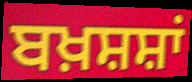
ਬਖ਼ਸ਼ਸ਼ਾਂ